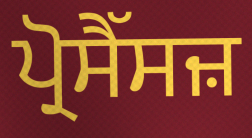
ਪ੍ਰੋਸੈੱਸਜ਼